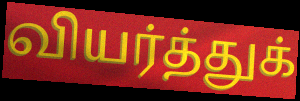
வியர்த்துக்